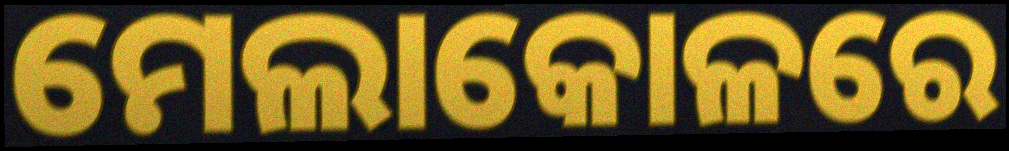
ମେଲାକୋଳରେ